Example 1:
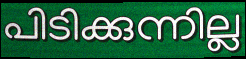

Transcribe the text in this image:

പിടിക്കുന്നില്ല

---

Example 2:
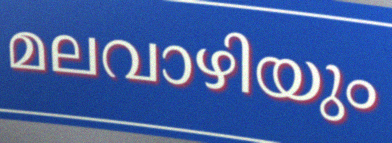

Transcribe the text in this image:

മലവാഴിയും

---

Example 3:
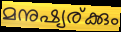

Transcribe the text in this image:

മനുഷ്യര്ക്കും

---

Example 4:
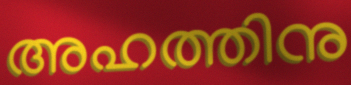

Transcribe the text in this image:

അഹത്തിനു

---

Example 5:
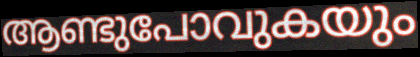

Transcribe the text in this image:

ആണ്ടുപോവുകയും